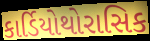
કાર્ડિયોથોરાસિક